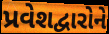
પ્રવેશદ્વારોને